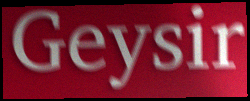
Geysir